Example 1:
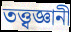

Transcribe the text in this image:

তত্ত্বজ্ঞানী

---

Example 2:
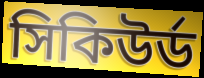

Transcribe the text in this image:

সিকিউর্ড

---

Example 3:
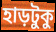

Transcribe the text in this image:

হাড়টুকু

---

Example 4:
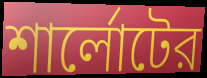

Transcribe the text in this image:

শার্লোটের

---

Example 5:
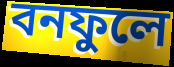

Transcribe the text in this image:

বনফুলে